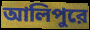
আলিপুরে